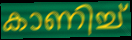
കാണിച്ച്